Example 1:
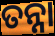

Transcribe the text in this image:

ତନ୍ନା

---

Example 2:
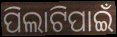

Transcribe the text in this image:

ପିଲାଟିପାଇଁ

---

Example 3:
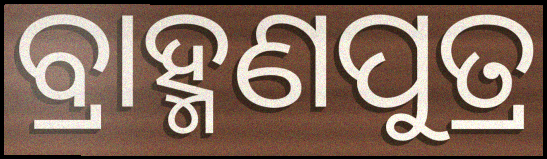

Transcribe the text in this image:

ବ୍ରାହ୍ମଣପୁତ୍ର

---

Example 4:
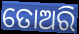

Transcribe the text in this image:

ତୋଅରି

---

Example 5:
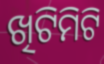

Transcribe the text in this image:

ଖିଟିମିଟି